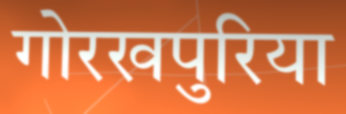
गोरखपुरिया